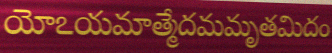
యోఽయమాత్మేదమమృతమిదం